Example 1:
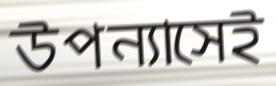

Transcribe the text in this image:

উপন্যাসেই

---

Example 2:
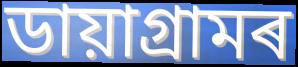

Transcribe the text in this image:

ডায়াগ্ৰামৰ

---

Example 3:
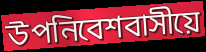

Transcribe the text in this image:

উপনিবেশবাসীয়ে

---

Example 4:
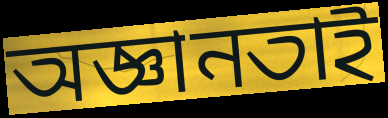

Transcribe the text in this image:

অজ্ঞানতাই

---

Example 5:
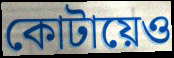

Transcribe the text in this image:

কোটায়েও